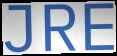
JRE